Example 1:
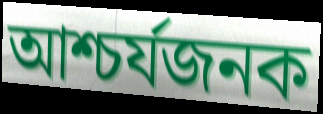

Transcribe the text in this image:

আশ্চর্যজনক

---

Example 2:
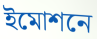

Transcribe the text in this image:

ইমোশনে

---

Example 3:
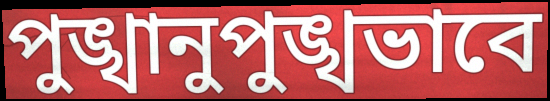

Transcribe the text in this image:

পুঙ্খানুপুঙ্খভাবে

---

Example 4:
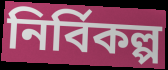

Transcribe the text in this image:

নির্বিকল্প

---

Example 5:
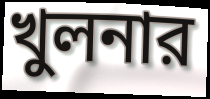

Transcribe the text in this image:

খুলনার